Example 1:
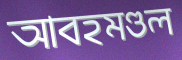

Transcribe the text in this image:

আবহমণ্ডল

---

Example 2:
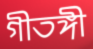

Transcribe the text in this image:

গীতঙ্গী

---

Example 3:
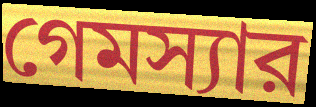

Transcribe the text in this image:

গেমস্যার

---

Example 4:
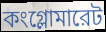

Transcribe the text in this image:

কংগ্লোমারেট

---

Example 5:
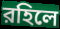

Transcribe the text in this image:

রহিলে